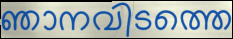
ഞാനവിടത്തെ